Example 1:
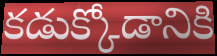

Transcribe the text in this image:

కడుక్కోడానికి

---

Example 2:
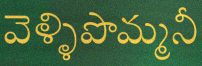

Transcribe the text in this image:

వెళ్ళిపొమ్మనీ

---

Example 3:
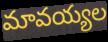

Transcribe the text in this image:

మావయ్యల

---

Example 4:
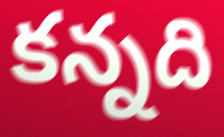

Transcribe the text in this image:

కన్నది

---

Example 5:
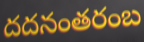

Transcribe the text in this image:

దదనంతరంబ